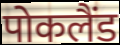
पोकलैंड